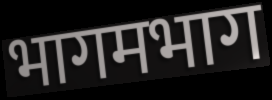
भागमभाग